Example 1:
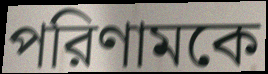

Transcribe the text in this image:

পরিণামকে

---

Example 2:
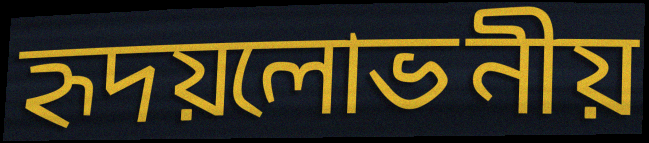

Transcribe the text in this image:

হৃদয়লোভনীয়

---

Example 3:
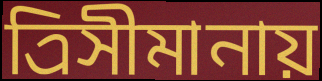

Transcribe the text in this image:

ত্রিসীমানায়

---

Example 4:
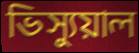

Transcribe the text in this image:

ভিস্যুয়াল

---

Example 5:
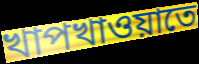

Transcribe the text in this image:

খাপখাওয়াতে